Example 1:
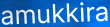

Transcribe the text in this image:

amukkira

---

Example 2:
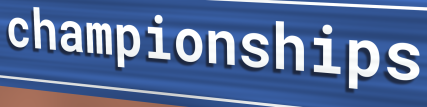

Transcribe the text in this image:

championships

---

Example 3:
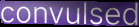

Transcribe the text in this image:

convulsed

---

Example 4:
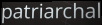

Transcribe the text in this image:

patriarchal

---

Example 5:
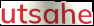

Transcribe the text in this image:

utsahe